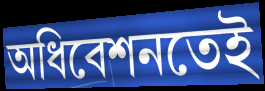
অধিবেশনতেই